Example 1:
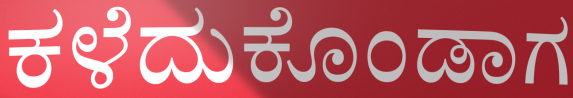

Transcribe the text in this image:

ಕಳೆದುಕೊಂಡಾಗ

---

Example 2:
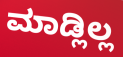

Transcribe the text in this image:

ಮಾಡ್ಲಿಲ್ಲ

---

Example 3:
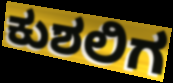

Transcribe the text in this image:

ಕುಶಲಿಗ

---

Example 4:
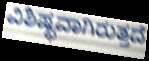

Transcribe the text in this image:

ವಿಶಿಷ್ಟವಾಗಿರುತ್ತದೆ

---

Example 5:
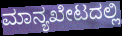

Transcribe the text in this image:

ಮಾನ್ಯಖೇಟದಲ್ಲಿ